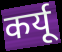
कर्यू